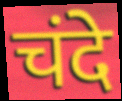
चंदे